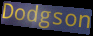
Dodgson